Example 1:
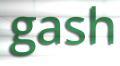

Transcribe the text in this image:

gash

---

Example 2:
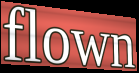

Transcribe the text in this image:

flown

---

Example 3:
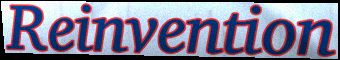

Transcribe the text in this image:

Reinvention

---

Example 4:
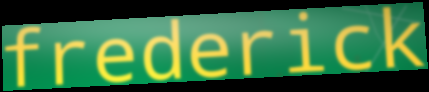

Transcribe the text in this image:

frederick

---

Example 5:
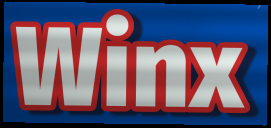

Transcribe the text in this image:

Winx